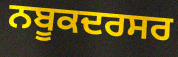
ਨਬੂਕਦਰਸਰ